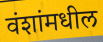
वंशांमधील